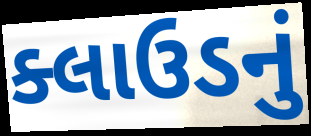
ક્લાઉડનું